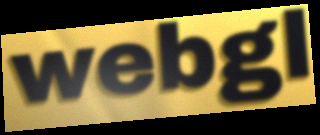
webgl